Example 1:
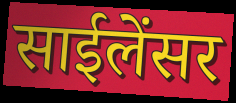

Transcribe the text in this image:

साईलेंसर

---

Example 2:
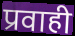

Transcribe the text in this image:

प्रवाही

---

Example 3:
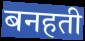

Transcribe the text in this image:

बनहती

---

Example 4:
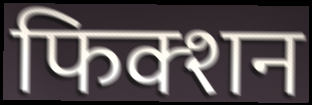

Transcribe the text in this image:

फिक्‍शन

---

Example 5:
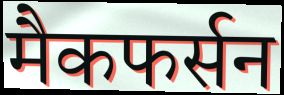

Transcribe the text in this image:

मैकफर्सन